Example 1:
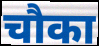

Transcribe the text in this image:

चौका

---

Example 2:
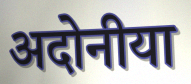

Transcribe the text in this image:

अदोनीया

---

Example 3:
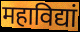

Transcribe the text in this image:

महाविद्यां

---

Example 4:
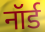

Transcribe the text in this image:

नॉर्ड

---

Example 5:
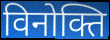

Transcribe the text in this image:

विनोक्ति